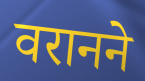
वरानने